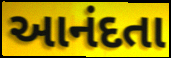
આનંદતા